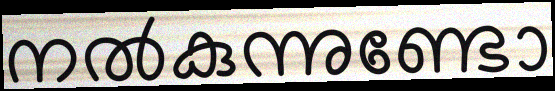
നൽകുന്നുണ്ടോ